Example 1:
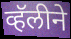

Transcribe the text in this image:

व्हॅलीने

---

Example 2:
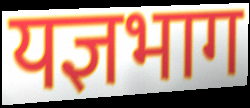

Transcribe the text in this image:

यज्ञभाग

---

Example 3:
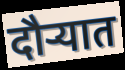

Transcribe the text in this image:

दौऱ्यात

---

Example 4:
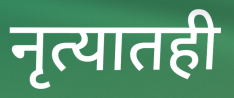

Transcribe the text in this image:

नृत्यातही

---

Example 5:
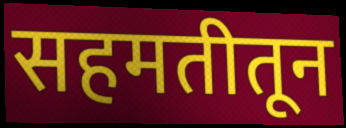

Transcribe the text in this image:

सहमतीतून